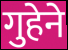
गुहेने